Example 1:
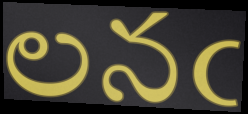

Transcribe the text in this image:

లనఁ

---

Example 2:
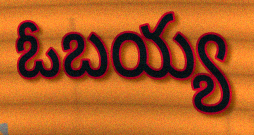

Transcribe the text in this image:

ఓబయ్య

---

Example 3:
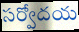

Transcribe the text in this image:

సర్వోదయ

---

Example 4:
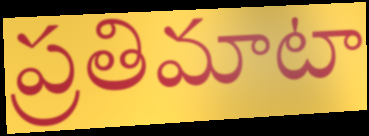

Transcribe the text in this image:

ప్రతిమాటా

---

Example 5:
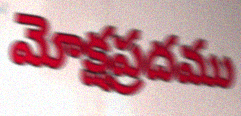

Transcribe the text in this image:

మోక్షప్రదము